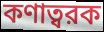
কণাত্বরক